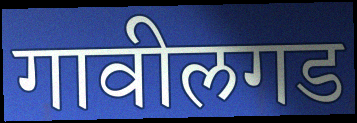
गावीलगड